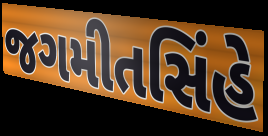
જગમીતસિંહે